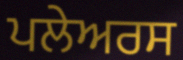
ਪਲੇਅਰਸ